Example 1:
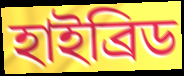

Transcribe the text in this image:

হাইব্রিড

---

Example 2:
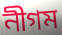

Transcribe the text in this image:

নীগম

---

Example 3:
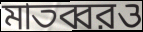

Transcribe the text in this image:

মাতব্বরও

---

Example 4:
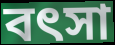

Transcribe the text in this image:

বৎসা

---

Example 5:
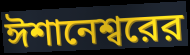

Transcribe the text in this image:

ঈশানেশ্বরের